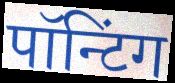
पॉन्टिंग